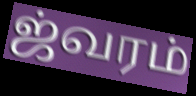
ஜ்வரம்